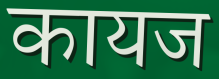
कायज